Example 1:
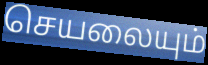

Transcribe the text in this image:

செயலையும்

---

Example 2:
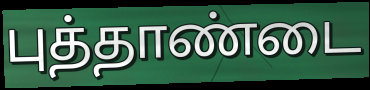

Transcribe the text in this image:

புத்தாண்டை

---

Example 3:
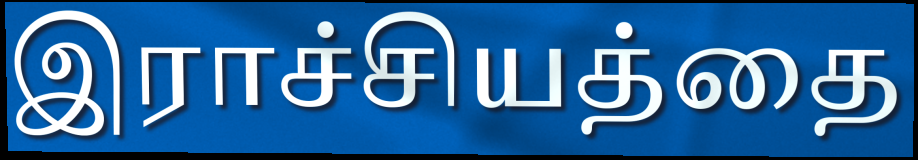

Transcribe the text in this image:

இராச்சியத்தை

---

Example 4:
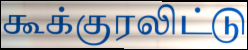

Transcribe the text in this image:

கூக்குரலிட்டு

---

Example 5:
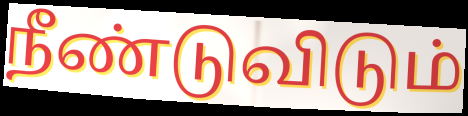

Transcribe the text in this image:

நீண்டுவிடும்